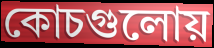
কোচগুলোয়